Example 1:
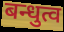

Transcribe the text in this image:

बन्धुत्व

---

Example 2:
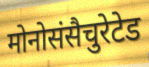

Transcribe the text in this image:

मोनोसंसैचुरेटेड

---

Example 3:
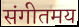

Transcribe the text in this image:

संगीतमय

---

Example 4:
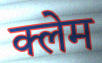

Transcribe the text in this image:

क्लेम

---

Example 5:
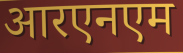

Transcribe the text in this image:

आरएनएम